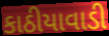
કાઠીયાવાડી